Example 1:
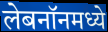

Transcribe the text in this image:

लेबनॉनमध्ये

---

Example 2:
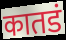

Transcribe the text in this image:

कातडं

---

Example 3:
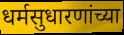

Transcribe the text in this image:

धर्मसुधारणांच्या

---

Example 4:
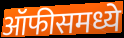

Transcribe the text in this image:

ऑफीसमध्ये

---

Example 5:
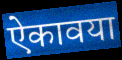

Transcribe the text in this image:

ऐकावया